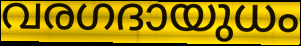
വരഗദായുധം